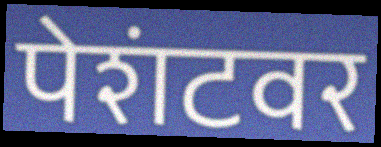
पेशंटवर